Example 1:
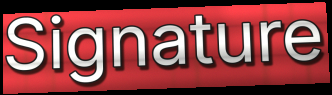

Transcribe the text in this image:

Signature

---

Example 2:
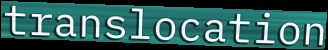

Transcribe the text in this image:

translocation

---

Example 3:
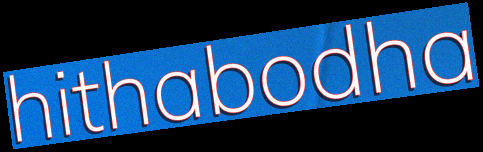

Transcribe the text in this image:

hithabodha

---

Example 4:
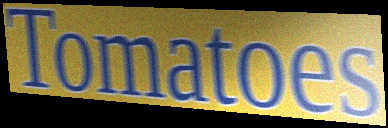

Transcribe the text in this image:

Tomatoes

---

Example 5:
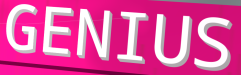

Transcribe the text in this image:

GENIUS